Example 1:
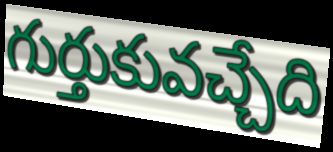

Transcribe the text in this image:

గుర్తుకువచ్చేది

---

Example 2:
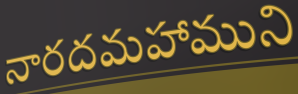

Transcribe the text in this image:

నారదమహాముని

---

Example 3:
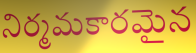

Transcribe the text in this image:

నిర్మమకారమైన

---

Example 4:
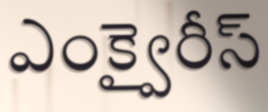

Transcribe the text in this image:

ఎంక్వైరీస్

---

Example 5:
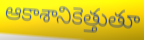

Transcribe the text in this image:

ఆకాశానికెత్తుతూ